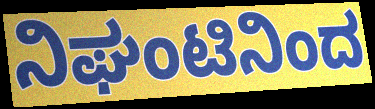
ನಿಘಂಟಿನಿಂದ